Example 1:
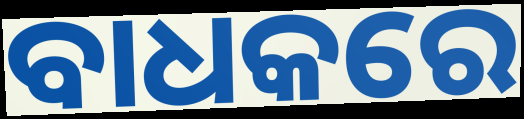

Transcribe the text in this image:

ବାଧକରେ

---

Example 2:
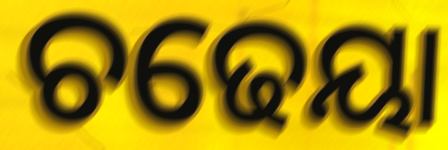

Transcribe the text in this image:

ଚଢେୟା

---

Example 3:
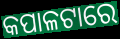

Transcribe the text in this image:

କପାଳଟାରେ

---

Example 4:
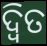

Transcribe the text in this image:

ଦ୍ବିତ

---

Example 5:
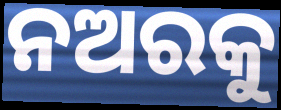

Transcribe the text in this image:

ନଅରକୁ